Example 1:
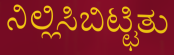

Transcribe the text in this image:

ನಿಲ್ಲಿಸಿಬಿಟ್ಟಿತು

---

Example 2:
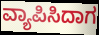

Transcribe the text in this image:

ವ್ಯಾಪಿಸಿದಾಗ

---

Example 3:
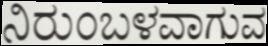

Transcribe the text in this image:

ನಿರುಂಬಳವಾಗುವ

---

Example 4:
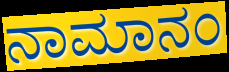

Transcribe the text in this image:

ನಾಮಾನಂ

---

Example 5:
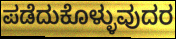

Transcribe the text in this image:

ಪಡೆದುಕೊಳ್ಳುವುದರ